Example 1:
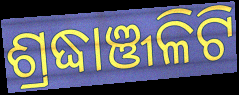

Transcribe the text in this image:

ଶ୍ରଦ୍ଧାଞ୍ଜଳିଟି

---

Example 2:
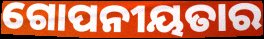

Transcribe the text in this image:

ଗୋପନୀୟତାର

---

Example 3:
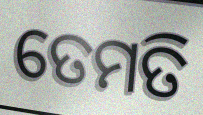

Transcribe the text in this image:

ତେମତି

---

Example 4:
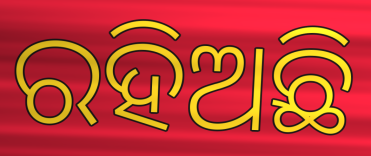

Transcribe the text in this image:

ରହିଅଛି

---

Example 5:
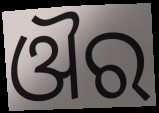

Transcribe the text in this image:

ଔର